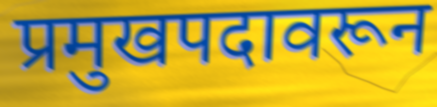
प्रमुखपदावरून